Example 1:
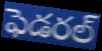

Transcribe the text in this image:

ఫెడరల్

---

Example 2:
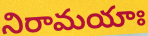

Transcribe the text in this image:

నిరామయాః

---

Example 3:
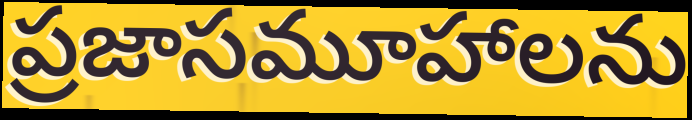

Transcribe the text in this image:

ప్రజాసమూహాలను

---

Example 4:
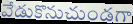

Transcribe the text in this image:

వేడుకొనుచుండగా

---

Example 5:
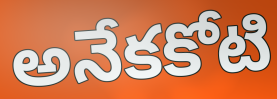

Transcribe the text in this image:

అనేకకోటి